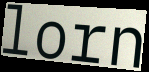
lorn